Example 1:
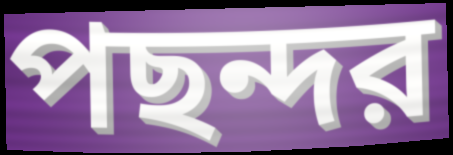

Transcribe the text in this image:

পছন্দর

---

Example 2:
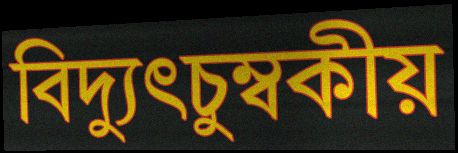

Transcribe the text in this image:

বিদ্যুৎচুম্বকীয়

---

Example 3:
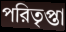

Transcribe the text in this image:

পরিতৃপ্তা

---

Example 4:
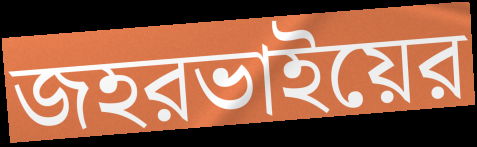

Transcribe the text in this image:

জহরভাইয়ের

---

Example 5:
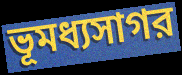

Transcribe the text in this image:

ভূমধ্যসাগর